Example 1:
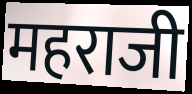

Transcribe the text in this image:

महराजी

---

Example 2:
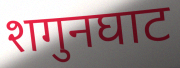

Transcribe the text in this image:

शगुनघाट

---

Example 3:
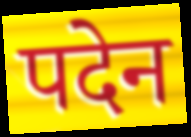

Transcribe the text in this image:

पदेन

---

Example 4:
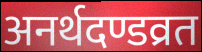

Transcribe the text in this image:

अनर्थदण्डव्रत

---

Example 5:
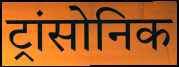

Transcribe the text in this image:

ट्रांसोनिक